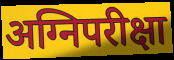
अग्निपरीक्षा